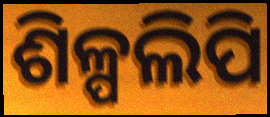
ଶିଳ୍ପଲିପି